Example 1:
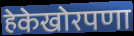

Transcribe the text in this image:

हेकेखोरपणा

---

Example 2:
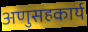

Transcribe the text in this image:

अणुसहकार्य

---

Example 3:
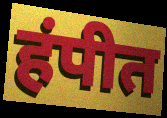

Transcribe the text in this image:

हंपीत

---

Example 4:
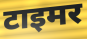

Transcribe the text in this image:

टाइमर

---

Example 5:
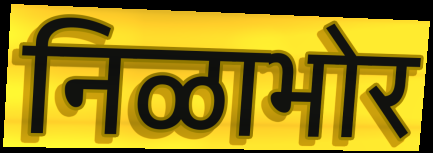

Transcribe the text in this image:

निळाभोर